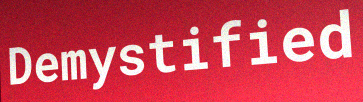
Demystified